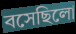
বসেছিলো